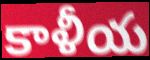
కాళీయ